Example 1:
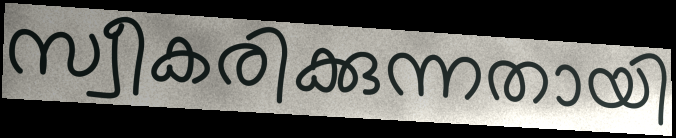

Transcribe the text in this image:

സ്വീകരിക്കുന്നതായി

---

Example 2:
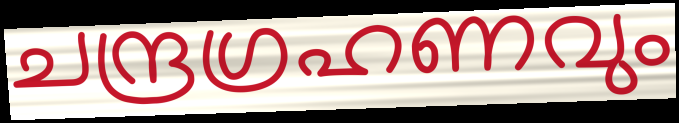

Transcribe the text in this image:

ചന്ദ്രഗ്രഹണവും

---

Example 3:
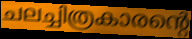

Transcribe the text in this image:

ചലച്ചിത്രകാരന്റെ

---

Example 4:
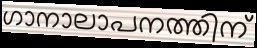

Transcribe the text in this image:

ഗാനാലാപനത്തിന്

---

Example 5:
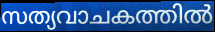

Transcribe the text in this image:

സത്യവാചകത്തിൽ